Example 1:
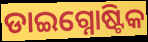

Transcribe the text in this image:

ଡାଇଗ୍ନୋଷ୍ଟିକ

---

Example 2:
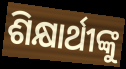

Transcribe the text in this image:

ଶିକ୍ଷାର୍ଥୀଙ୍କୁ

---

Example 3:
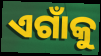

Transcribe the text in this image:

ଏଗାଁକୁ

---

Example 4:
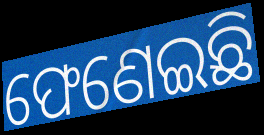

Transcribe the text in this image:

ଫେଣେଇଛି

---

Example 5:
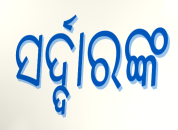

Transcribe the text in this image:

ସର୍ଦ୍ଦାରଙ୍କ